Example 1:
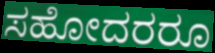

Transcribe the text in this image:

ಸಹೋದರರೂ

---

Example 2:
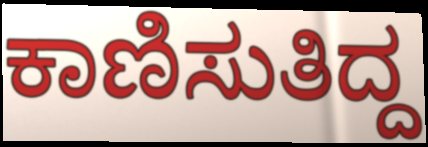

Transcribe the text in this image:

ಕಾಣಿಸುತಿದ್ದ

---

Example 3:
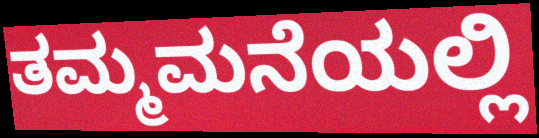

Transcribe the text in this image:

ತಮ್ಮಮನೆಯಲ್ಲಿ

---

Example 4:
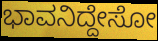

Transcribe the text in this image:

ಭಾವನಿದ್ದೇಸೋ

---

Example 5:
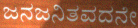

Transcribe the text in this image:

ಜನಜನಿತವದನೇ